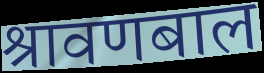
श्रावणबाल